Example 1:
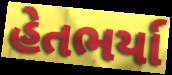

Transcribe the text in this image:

હેતભર્યા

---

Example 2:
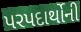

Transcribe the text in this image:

પરપદાર્થોની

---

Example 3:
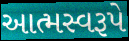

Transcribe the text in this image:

આત્મસ્વરૂપે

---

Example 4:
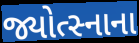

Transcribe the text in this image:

જ્યોત્સ્નાના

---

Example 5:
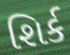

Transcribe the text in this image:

શિર્ક